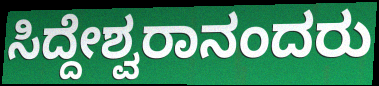
ಸಿದ್ದೇಶ್ವರಾನಂದರು